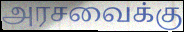
அரசவைக்கு